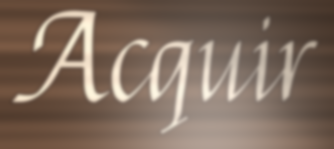
Acquir